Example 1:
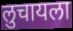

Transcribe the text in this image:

लुचायला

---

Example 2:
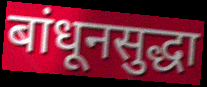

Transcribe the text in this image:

बांधूनसुद्धा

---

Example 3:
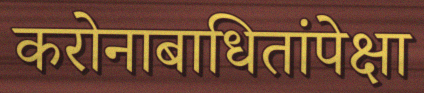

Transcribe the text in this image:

करोनाबाधितांपेक्षा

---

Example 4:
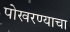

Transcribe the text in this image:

पोखरण्याचा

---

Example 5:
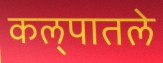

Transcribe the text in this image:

कल्पातले